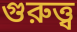
গুরুত্ত্ব